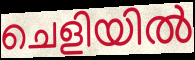
ചെളിയിൽ